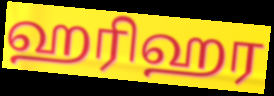
ஹரிஹர